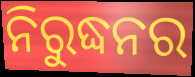
ନିରୁଦ୍ଧନର